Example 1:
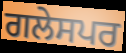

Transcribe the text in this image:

ਗਲੇਸਪਰ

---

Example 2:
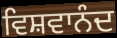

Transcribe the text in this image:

ਵਿਸ਼ਵਾਨੰਦ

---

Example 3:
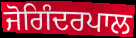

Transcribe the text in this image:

ਜੋਗਿੰਦਰਪਾਲ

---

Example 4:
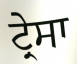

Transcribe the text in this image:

ਟ੍ਰੇਸਾ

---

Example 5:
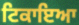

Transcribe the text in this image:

ਟਿਕਾਇਆ